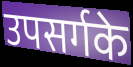
उपसर्गके